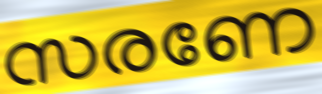
സരണേ